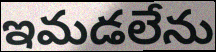
ఇమడలేను